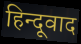
हिन्दूवाद